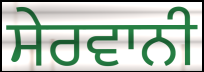
ਸੇਰਵਾਨੀ